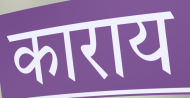
काराय